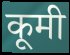
कूमी